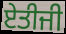
ਏਤੀਜੀ